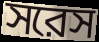
সরেস